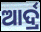
ଆର୍ଦ୍ର